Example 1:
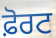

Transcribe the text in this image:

ਫ਼ੋਰਟ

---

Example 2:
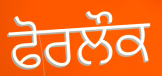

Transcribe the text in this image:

ਫੋਰਲੌਕ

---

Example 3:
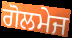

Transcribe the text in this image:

ਗੋਲਮੇਜ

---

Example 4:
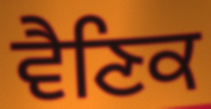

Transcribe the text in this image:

ਵੈਣਿਕ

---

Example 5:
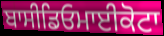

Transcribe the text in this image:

ਬਾਸੀਡਿਓਮਾਈਕੋਟਾ